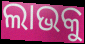
ଲାଭକୁ